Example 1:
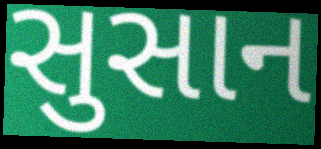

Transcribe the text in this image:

સુસાન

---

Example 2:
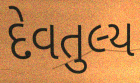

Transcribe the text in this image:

દેવતુલ્ય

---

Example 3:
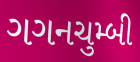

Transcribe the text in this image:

ગગનચુમ્બી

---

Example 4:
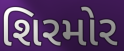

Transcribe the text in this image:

શિરમોર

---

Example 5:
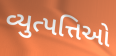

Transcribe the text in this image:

વ્યુત્પત્તિઓ